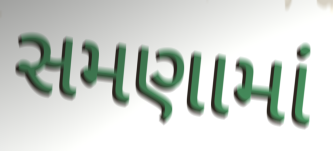
સમણામાં